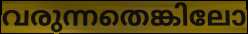
വരുന്നതെങ്കിലോ